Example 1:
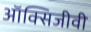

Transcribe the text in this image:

ऑक्सिजीवी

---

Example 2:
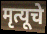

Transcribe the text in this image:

मृत्यूचे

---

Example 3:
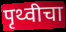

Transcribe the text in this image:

पृथ्वीचा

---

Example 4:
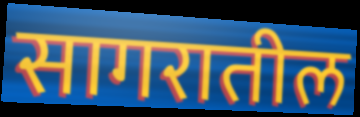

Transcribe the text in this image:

सागरातील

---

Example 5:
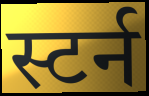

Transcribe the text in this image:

स्टर्न